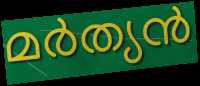
മർത്യൻ